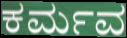
ಕರ್ಮವ